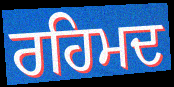
ਰਹਿਮਦ